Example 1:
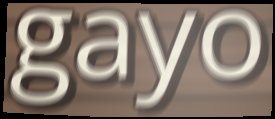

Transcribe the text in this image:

gayo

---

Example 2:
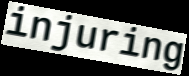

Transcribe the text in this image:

injuring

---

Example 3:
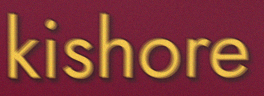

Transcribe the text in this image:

kishore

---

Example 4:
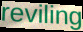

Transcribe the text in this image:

reviling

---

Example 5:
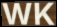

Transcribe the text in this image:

WK